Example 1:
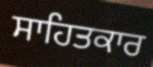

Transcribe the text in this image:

ਸਾਹਿਤਕਾਰ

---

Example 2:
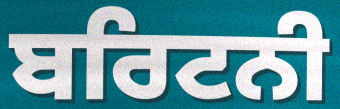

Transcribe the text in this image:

ਬਰਿਟਨੀ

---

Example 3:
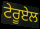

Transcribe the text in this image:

ਟੇਰੂਏਲ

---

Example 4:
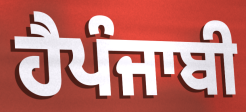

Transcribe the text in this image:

ਹੈਪੰਜਾਬੀ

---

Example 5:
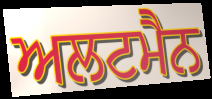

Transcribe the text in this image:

ਅਲਟਮੈਨ